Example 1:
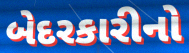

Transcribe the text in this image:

બેદરકારીનો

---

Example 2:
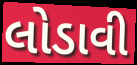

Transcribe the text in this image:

લોડાવી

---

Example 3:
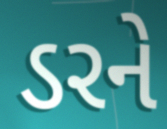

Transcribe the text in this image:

ડરને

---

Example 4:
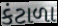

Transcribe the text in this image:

કંટાળા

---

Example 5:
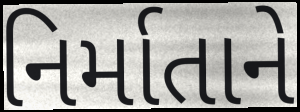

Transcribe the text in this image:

નિર્માતાને